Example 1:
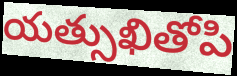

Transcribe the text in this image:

యత్సుఖితోపి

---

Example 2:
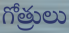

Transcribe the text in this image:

గోత్రులు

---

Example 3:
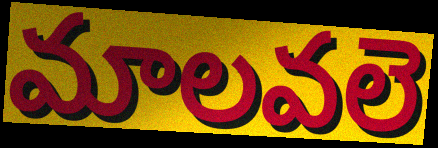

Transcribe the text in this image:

మాలవలె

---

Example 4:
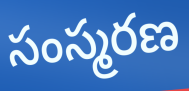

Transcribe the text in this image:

సంస్మరణ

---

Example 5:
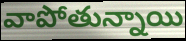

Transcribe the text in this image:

వాపోతున్నాయి